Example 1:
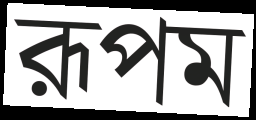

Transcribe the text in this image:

রূপম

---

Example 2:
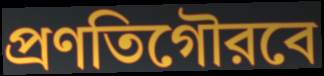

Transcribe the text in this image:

প্রণতিগৌরবে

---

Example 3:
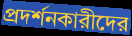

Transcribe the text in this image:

প্রদর্শনকারীদের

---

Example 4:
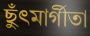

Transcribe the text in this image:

ছুঁৎমার্গীতা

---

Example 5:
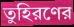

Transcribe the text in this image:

তুহিরণের